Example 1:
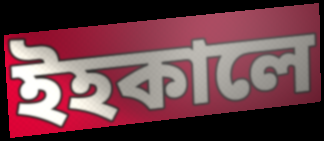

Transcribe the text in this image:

ইহকালে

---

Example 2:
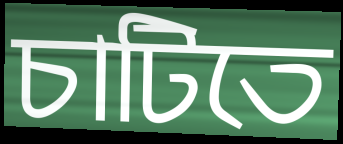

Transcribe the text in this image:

চাটিতে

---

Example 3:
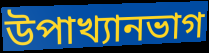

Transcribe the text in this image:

উপাখ্যানভাগ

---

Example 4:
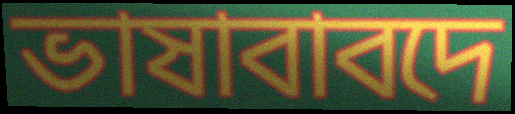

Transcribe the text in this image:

ভাষাবাবদে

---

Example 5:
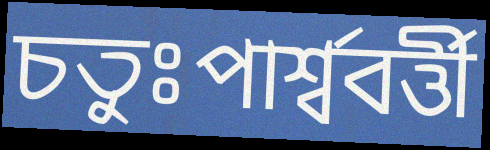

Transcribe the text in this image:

চতুঃপার্শ্ববর্ত্তী